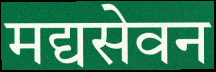
मद्यसेवन